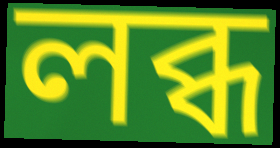
লব্ধ